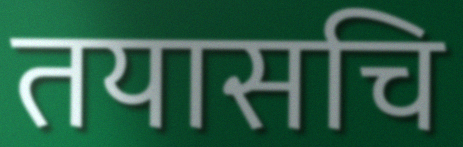
तयासचि